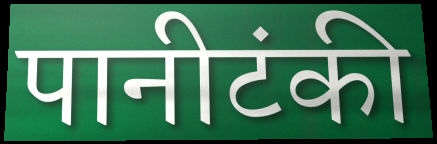
पानीटंकी